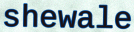
shewale